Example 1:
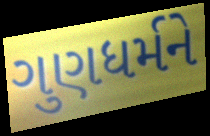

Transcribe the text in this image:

ગુણધર્મને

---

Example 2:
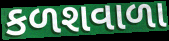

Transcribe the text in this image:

કળશવાળા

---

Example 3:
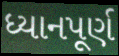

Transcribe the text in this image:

ધ્યાનપૂર્ણ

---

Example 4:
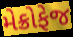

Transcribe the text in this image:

મેક્રોફેજ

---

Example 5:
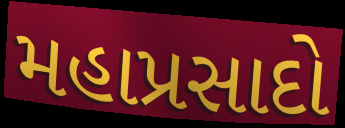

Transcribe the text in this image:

મહાપ્રસાદો